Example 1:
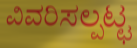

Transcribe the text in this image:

ವಿವರಿಸಲ್ಪಟ್ಟ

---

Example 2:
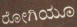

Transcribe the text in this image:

ರೋಗಿಯೂ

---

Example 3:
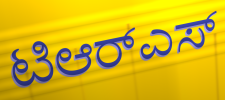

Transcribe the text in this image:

ಟಿಆರ್‌ಎಸ್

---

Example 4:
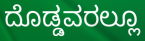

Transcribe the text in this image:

ದೊಡ್ಡವರಲ್ಲೂ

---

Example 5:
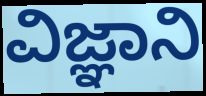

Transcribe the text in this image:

ವಿಜ್ಞಾನಿ